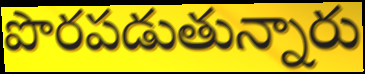
పొరపడుతున్నారు